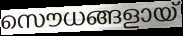
സൌധങ്ങളായ്